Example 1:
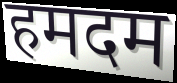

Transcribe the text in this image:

हमदम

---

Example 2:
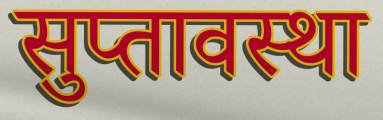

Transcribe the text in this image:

सुप्तावस्था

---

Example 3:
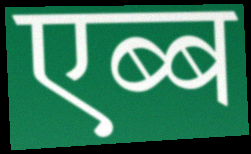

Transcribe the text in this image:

एब्ब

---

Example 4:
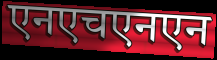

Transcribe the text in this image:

एनएचएनएन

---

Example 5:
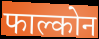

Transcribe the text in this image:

फाल्कोन